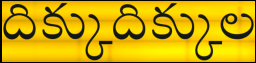
దిక్కుదిక్కుల